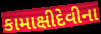
કામાક્ષીદેવીના